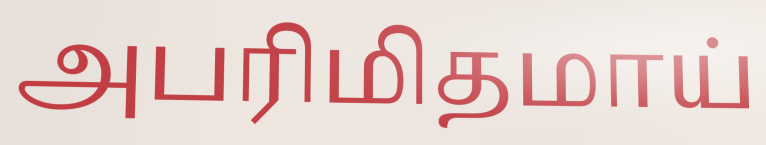
அபரிமிதமாய்